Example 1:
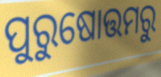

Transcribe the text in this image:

ପୁରୁଷୋତ୍ତମରୁ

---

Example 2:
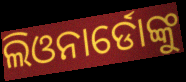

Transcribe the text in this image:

ଲିଓନାର୍ଡୋଙ୍କୁ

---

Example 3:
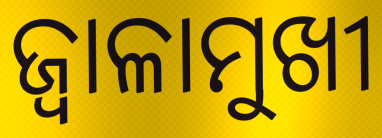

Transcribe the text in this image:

ଜ୍ୱାଳାମୁଖୀ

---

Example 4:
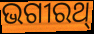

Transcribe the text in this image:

ଭଗୀରଥ୍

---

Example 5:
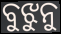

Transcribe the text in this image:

ବୁଝୁନୁ